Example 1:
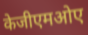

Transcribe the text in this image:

केजीएमओए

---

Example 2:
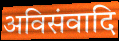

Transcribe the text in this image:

अविसंवादि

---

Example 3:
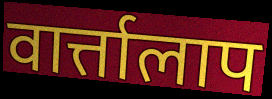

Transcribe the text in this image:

वार्त्तालाप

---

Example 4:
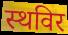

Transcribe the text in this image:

स्थविर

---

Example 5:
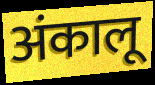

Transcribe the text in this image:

अंकालू